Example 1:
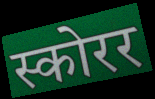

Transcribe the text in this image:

स्कोरर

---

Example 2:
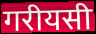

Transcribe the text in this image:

गरीयसी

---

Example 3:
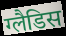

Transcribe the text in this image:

ग्लैडिस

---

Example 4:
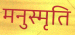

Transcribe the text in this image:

मनुस्मृति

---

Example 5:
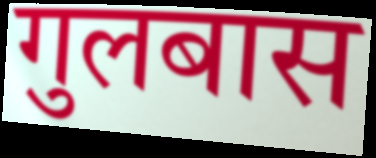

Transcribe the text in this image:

गुलबास